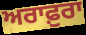
ਅਰਾਫ਼ੁਰਾ